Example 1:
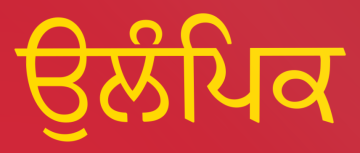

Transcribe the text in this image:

ਉਲੰਪਿਕ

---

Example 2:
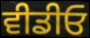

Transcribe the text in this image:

ਵੀਡੀਓ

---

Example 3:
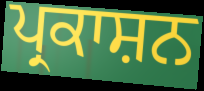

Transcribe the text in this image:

ਪ੍ਰਕਾਸ਼ਨ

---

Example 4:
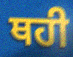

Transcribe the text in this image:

ਥਹੀ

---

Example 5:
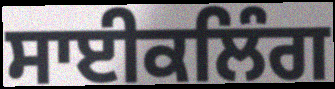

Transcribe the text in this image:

ਸਾਈਕਲਿੰਗ